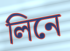
লিনে